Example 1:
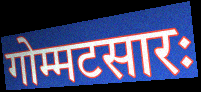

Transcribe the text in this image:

गोम्मटसारः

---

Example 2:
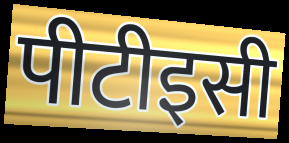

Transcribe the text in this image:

पीटीइसी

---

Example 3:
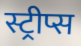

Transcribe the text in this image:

स्ट्रीप्स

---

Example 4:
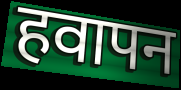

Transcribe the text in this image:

हवापन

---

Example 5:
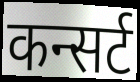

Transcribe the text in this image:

कन्सर्ट